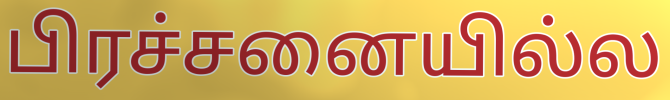
பிரச்சனையில்ல